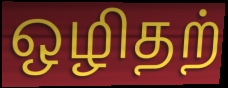
ஒழிதற்